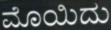
ಮೊಯಿದು